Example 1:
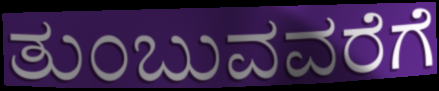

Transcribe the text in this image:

ತುಂಬುವವರೆಗೆ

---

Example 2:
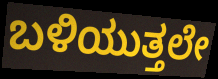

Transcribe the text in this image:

ಬಳಿಯುತ್ತಲೇ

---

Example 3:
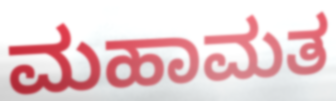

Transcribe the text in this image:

ಮಹಾಮತ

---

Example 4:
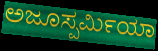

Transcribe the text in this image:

ಅಜೂಸ್ಪರ್ಮಿಯಾ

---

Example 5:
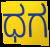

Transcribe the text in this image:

ಧಗ